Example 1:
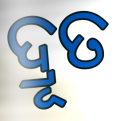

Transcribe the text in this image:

ଦ୍ରୂତ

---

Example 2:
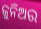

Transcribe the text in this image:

ଜୁନିଅର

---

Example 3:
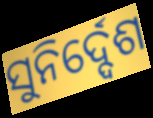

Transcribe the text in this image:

ସୁନିର୍ଦ୍ଦେଶ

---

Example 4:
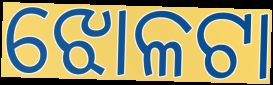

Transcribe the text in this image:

ଝୋଳଟା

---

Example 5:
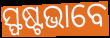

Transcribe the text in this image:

ସ୍ଫଷ୍ଟଭାବେ